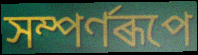
সম্পৰ্ণৰূপে